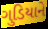
ગુડિયાને